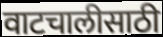
वाटचालीसाठी